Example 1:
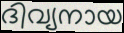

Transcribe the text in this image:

ദിവ്യനായ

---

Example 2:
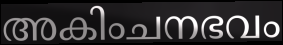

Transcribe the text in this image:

അകിംചനഭവം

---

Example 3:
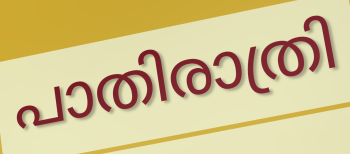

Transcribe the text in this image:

പാതിരാത്രി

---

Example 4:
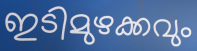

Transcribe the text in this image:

ഇടിമുഴക്കവും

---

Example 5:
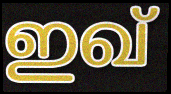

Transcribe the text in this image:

ഇഖ്